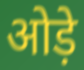
ओड़े